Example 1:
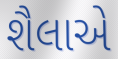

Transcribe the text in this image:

શૈલાએ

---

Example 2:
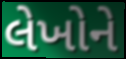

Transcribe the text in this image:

લેખોને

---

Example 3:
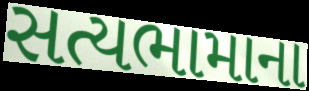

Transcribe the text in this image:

સત્યભામાના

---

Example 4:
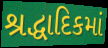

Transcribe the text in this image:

શ્રદ્ધાદિકમાં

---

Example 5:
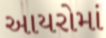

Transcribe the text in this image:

આયરોમાં